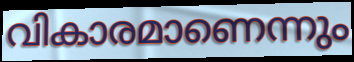
വികാരമാണെന്നും